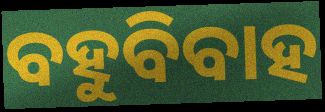
ବହୁବିବାହ